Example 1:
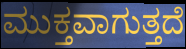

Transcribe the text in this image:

ಮುಕ್ತವಾಗುತ್ತದೆ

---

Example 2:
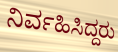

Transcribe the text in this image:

ನಿರ್ವಹಿಸಿದ್ದರು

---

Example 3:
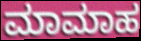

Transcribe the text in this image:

ಮಾಮಾಹ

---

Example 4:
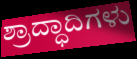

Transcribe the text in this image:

ಶ್ರಾದ್ಧಾದಿಗಳು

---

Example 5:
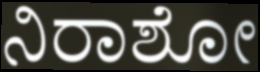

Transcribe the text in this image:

ನಿರಾಶೋ